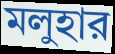
মলুহার